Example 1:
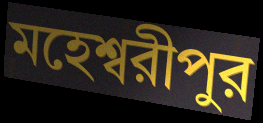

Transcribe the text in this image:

মহেশ্বরীপুর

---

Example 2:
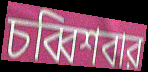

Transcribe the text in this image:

চব্বিশবার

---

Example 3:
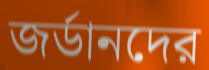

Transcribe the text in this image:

জর্ডানদের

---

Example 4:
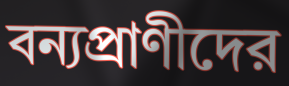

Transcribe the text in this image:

বন্যপ্রাণীদের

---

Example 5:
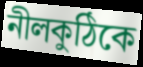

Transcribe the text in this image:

নীলকুঠিকে